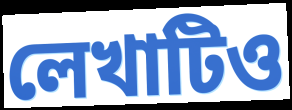
লেখাটিও